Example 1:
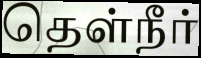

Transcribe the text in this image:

தெள்நீர்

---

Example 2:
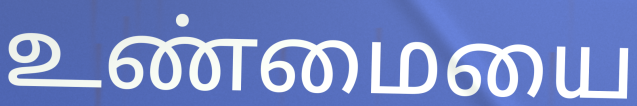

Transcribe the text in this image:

உண்மையை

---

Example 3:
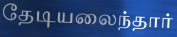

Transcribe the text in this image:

தேடியலைந்தார்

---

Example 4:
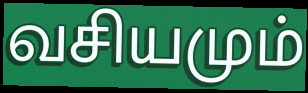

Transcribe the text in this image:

வசியமும்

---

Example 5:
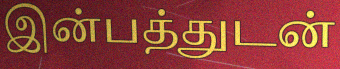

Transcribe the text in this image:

இன்பத்துடன்